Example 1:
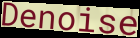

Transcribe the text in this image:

Denoise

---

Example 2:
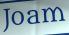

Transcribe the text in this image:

Joam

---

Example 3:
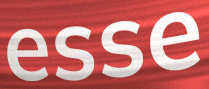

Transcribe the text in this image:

esse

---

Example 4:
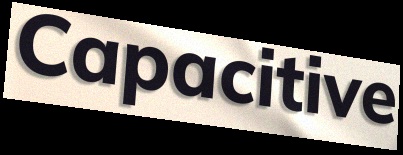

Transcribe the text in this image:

Capacitive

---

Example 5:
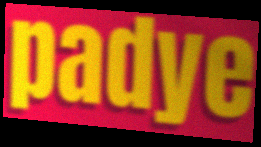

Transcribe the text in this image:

padye